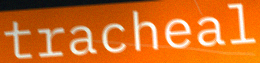
tracheal